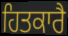
ਹਿਤਕਾਰੈ